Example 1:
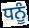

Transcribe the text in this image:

ਧਨੂੰ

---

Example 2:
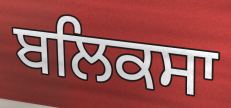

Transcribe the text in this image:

ਬਲਿਕਸਾ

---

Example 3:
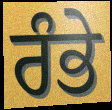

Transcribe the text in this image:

ਰੰਭੇ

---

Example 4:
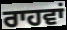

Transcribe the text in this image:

ਰਾਹਵਾਂ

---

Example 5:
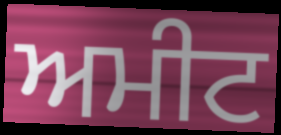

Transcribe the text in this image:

ਅਮੀਟ